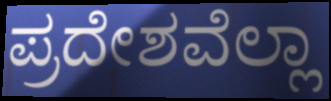
ಪ್ರದೇಶವೆಲ್ಲಾ